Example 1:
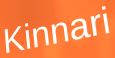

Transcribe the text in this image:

Kinnari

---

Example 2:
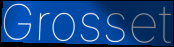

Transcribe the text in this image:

Grosset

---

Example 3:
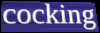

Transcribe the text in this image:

cocking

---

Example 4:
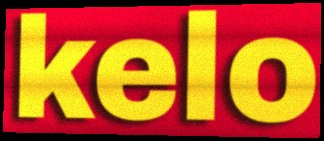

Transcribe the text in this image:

kelo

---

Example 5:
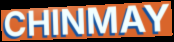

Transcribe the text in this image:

CHINMAY